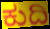
ಕುದಿ